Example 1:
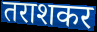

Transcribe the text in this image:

तराशकर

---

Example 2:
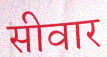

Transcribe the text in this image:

सीवार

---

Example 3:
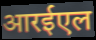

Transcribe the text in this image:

आरईएल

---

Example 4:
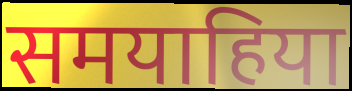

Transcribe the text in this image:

समयाहिया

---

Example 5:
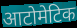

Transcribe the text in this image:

आटोमेटिक